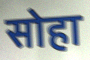
सोहा